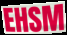
EHSM